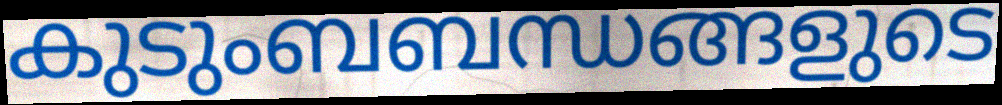
കുടുംബബന്ധങ്ങളുടെ